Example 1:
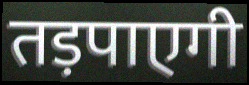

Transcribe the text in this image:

तड़पाएगी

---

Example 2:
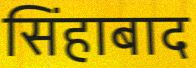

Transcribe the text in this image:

सिंहाबाद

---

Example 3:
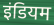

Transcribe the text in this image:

इंडियम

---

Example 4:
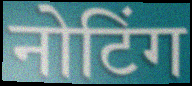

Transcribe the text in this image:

नोटिंग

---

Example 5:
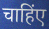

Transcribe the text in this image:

चाहिंए